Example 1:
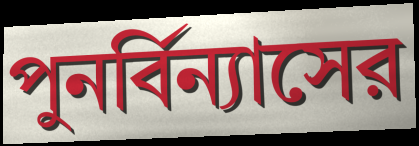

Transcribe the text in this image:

পুনর্বিন্যাসের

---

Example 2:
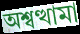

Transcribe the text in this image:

অশ্বত্থামা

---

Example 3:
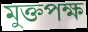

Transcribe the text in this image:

মুক্তপক্ষ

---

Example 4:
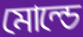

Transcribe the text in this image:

মোল্ডে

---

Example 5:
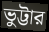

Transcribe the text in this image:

ভুট্টার